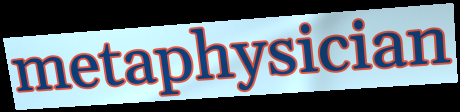
metaphysician